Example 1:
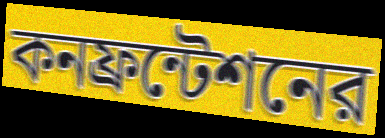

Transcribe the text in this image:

কনফ্রন্টেশনের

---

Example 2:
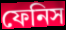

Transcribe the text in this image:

ফেনিস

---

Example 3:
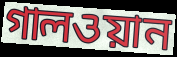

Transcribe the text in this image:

গালওয়ান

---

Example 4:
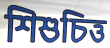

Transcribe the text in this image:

শিশুচিত্ত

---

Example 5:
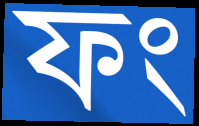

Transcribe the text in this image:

ফং